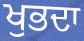
ਖੁਭਦਾ